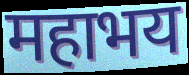
महाभय